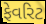
ફેવરિટ